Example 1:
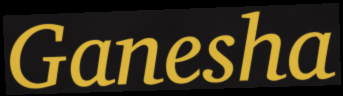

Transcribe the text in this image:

Ganesha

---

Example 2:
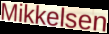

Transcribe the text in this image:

Mikkelsen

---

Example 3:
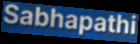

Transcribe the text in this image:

Sabhapathi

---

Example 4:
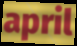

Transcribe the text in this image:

april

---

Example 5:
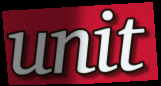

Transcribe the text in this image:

unit